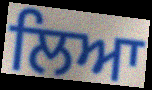
ਲਿਆ